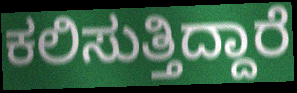
ಕಲಿಸುತ್ತಿದ್ದಾರೆ